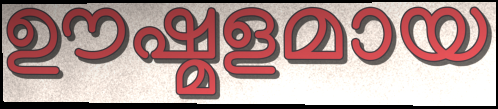
ഊഷ്മളമായ